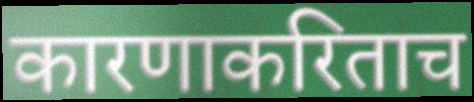
कारणाकरिताच